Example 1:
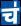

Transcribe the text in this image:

च॑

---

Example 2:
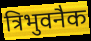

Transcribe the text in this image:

त्रिभुवनैक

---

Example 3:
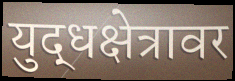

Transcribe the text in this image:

युद्धक्षेत्रावर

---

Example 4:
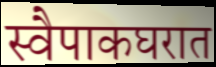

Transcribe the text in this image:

स्वैपाकघरात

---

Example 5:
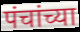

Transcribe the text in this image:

पंचांच्या